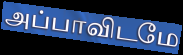
அப்பாவிடமே